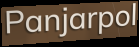
Panjarpol